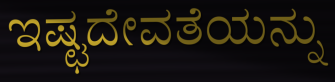
ಇಷ್ಟದೇವತೆಯನ್ನು